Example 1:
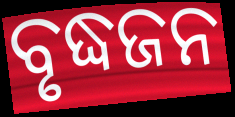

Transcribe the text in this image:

ବୃଦ୍ଧଜନ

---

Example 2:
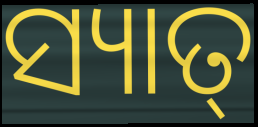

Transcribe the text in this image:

ସ୍ୟାତ୍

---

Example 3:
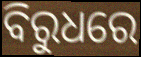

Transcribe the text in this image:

ବିରୁଧରେ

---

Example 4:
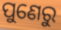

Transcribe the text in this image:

ପୁଣେରୁ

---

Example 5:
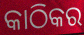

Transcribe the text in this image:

କାଠିକର